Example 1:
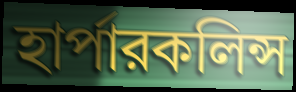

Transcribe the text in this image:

হার্পারকলিন্স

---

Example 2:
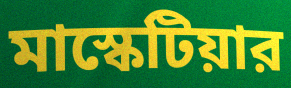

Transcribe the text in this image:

মাস্কেটিয়ার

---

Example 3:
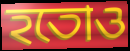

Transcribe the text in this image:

হতোও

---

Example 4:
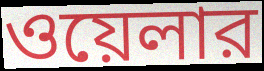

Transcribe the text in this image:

ওয়েলার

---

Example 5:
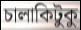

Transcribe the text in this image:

চালাকিটুকু